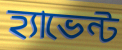
হ্যাভেন্ট